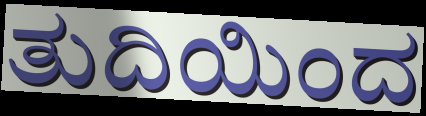
ತುದಿಯಿಂದ